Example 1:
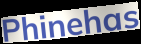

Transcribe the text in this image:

Phinehas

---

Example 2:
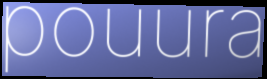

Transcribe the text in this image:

pouura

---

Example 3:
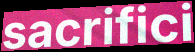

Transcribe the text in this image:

sacrifici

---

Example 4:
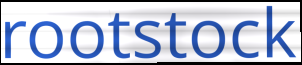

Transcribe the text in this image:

rootstock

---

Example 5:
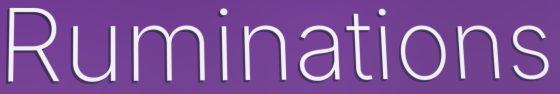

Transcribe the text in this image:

Ruminations